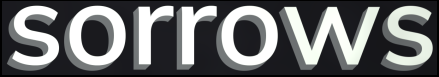
sorrows